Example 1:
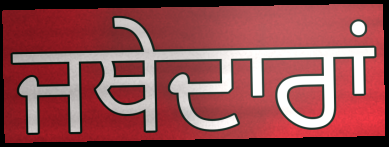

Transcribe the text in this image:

ਜਥੇਦਾਰਾਂ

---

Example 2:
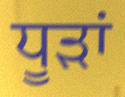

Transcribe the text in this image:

ਧੂਡ਼ਾਂ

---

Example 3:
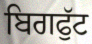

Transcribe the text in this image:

ਬਿਗਫੁੱਟ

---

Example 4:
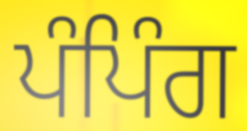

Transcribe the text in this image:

ਪੰਪਿੰਗ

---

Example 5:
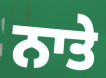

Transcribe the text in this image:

ਨਾਤੇ